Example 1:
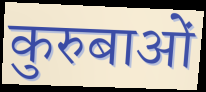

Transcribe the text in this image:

कुरुबाओं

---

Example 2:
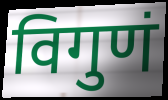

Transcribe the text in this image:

विगुणं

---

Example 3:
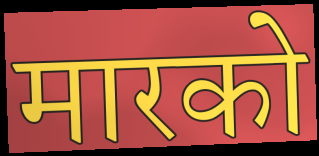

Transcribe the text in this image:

मारको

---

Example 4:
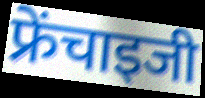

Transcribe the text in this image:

फ्रेंचाइजी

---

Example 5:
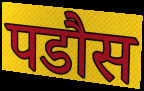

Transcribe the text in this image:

पडौस